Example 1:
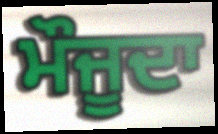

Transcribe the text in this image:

ਮੌਜੂਦਾ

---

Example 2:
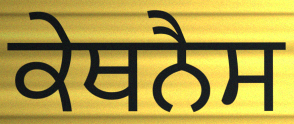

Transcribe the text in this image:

ਕੇਥਨੈਸ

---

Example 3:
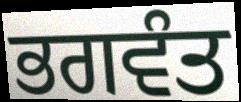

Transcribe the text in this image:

ਭਗਵੰਤ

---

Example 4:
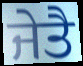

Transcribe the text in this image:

ਜੇਤੈ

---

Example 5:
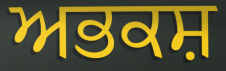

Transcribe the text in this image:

ਅਭਕਸ਼